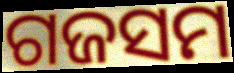
ଗଜସମ